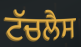
ਟੱਚਲੈਸ